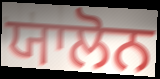
ਯਾਲੋਨ